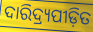
ଦାରିଦ୍ର୍ୟପୀଡ଼ିତ